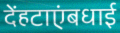
देंहटाएंबधाई